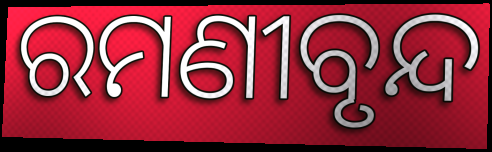
ରମଣୀବୃନ୍ଦ